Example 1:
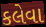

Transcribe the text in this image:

કલેવા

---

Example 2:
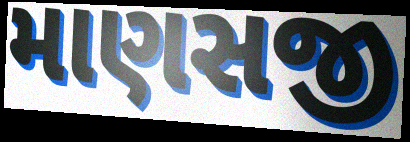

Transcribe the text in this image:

માણસજી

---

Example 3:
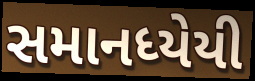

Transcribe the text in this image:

સમાનધ્યેયી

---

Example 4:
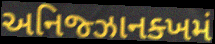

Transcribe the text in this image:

અનિજ્ઝાનક્ખમં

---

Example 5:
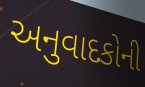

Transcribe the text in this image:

અનુવાદકોની